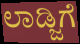
ಲಾಡ್ಜಿಗೆ